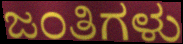
ಜಂತಿಗಳು